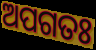
ଅପଗତଃ